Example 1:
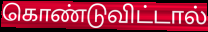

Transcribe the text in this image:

கொண்டுவிட்டால்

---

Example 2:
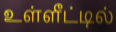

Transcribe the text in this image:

உள்ளீட்டில்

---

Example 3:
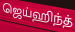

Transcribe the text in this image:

ஜெய்ஹிந்த்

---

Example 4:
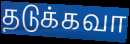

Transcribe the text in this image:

தடுக்கவா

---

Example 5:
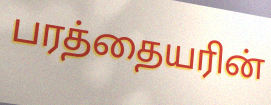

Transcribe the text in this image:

பரத்தையரின்